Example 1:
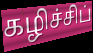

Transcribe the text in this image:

கழிச்சிப்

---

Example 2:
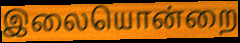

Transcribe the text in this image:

இலையொன்றை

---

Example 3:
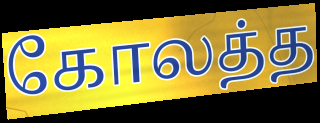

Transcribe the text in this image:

கோலத்த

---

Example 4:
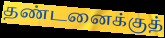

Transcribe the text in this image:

தண்டனைக்குத்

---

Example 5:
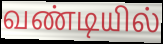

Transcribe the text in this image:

வண்டியில்